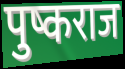
पुष्कराज